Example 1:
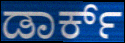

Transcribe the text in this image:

ಡಾರ್ಕ್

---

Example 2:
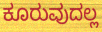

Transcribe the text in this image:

ಕೂರುವುದಲ್ಲ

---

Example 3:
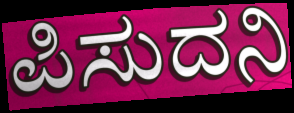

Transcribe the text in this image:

ಪಿಸುದನಿ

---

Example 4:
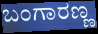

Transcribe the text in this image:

ಬಂಗಾರಣ್ಣ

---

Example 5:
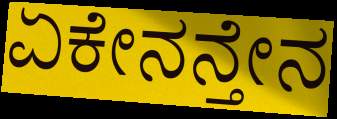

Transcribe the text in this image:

ಏಕೇನನ್ತೇನ